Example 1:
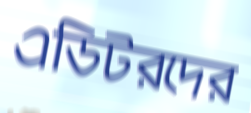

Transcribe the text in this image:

এডিটরদের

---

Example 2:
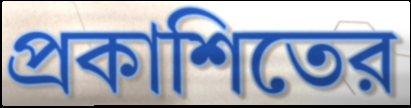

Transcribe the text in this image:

প্রকাশিতের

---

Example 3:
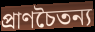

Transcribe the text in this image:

প্রাণচৈতন্য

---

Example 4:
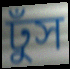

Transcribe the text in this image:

ঢুঁস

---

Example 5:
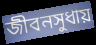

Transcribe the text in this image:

জীবনসুধায়